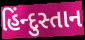
હિંન્દુસ્તાન